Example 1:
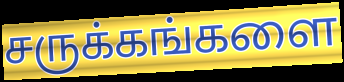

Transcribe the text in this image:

சருக்கங்களை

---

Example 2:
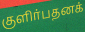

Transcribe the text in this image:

குளிர்பதனக்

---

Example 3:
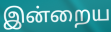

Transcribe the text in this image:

இன்றைய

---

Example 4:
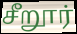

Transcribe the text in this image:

சீறூர்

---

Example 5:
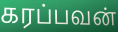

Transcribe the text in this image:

கரப்பவன்